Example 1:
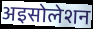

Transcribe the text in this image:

अइसोलेशन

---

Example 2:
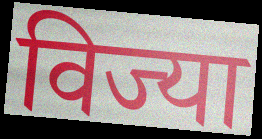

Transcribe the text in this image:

विज्या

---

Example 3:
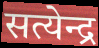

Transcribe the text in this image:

सत्येन्द्र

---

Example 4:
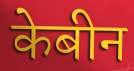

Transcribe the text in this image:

केबीन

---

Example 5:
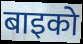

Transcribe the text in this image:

बाइको